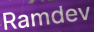
Ramdev